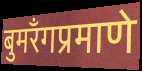
बुमरँगप्रमाणे